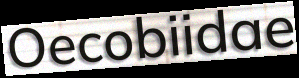
Oecobiidae